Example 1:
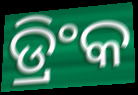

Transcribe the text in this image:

ଡ୍ରିଂକ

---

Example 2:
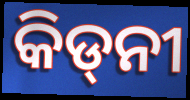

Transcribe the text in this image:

କିଡ୍‌ନୀ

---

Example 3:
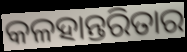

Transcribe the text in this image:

କଳହାନ୍ତରିତାର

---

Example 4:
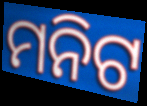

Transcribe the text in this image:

ମନିଟ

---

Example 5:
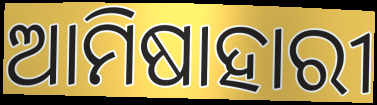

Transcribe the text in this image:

ଆମିଷାହାରୀ